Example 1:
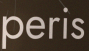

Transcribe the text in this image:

peris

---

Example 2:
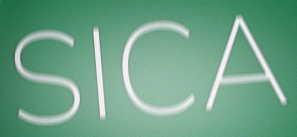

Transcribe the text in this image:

SICA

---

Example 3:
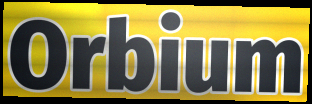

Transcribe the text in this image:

Orbium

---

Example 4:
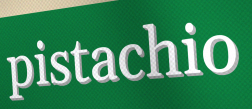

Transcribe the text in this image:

pistachio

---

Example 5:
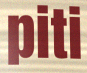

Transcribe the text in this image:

piti